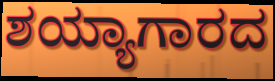
ಶಯ್ಯಾಗಾರದ